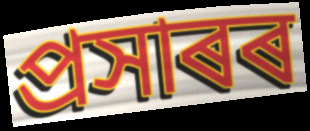
প্ৰসাৰৰ